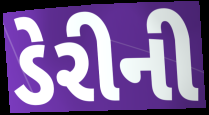
ડેરીની